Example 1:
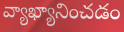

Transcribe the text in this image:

వ్యాఖ్యానించడం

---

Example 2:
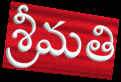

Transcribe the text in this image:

శ్రీమతి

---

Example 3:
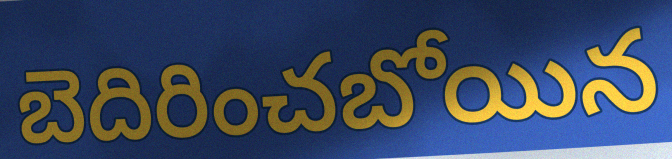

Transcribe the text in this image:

బెదిరించబోయిన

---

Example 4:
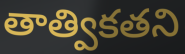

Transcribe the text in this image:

తాత్వికతని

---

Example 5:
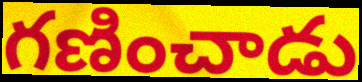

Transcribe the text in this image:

గణించాడు